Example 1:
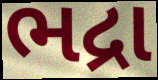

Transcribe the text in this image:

ભદ્રા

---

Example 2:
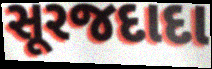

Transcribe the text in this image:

સૂરજદાદા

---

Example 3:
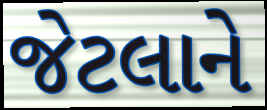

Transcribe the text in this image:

જેટલાને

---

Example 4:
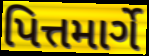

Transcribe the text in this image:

પિત્તમાર્ગે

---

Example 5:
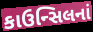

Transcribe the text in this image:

કાઉન્સિલનાં